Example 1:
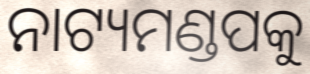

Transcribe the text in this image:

ନାଟ୍ୟମଣ୍ଡପକୁ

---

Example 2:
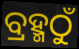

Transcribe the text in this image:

ବ୍ରହ୍ମଠୁଁ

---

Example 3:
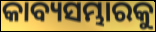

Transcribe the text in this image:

କାବ୍ୟସମ୍ଭାରକୁ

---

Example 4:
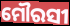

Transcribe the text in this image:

ମୌରସୀ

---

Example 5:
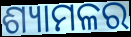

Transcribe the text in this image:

ଶ୍ୟାମଳର